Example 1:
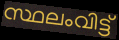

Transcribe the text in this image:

സ്ഥലംവിട്ട്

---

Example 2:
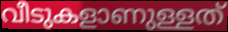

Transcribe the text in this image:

വീടുകളാണുള്ളത്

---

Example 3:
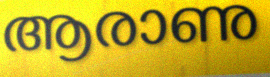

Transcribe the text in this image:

ആരാണു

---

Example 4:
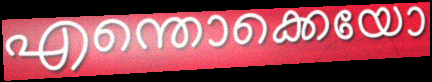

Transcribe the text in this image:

എന്തൊക്കെയോ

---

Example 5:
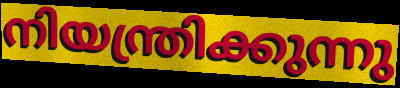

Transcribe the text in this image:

നിയന്ത്രിക്കുന്നു